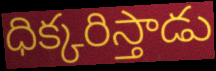
ధిక్కరిస్తాడు